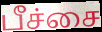
பீச்சை